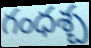
గంధశ్చ